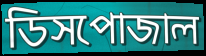
ডিসপোজাল